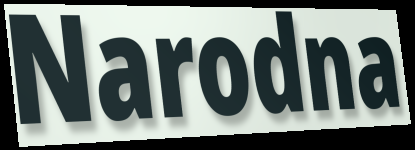
Narodna